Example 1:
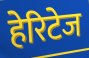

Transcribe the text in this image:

हेरिटेज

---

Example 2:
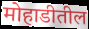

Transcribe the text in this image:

मोहाडीतील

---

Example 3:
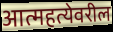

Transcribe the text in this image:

आत्महत्येवरील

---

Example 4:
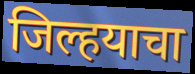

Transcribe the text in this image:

जिल्हयाचा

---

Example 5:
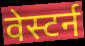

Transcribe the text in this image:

वेस्टर्न